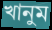
খানুম